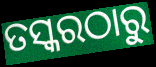
ତସ୍କରଠାରୁ